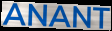
ANANT